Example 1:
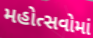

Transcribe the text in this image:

મહોત્સવોમાં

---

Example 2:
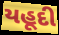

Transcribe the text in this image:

યહૂદી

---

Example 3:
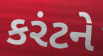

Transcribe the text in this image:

કરંટને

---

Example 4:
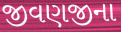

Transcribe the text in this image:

જીવણજીના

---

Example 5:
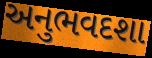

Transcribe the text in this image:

અનુભવદશા